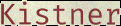
Kistner